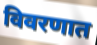
विवरणात